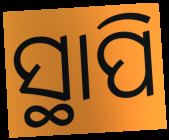
ସ୍ଥାପି